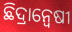
ଛିଦ୍ରାନ୍ୱେଷୀ